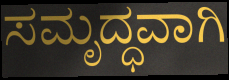
ಸಮೃದ್ಧವಾಗಿ